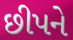
છીપને